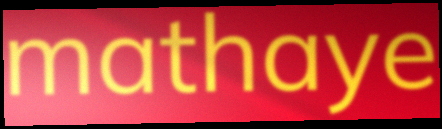
mathaye